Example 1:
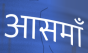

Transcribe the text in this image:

आसमाँ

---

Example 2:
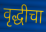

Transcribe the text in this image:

वृद्धीचा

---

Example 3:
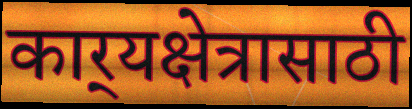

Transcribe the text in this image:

कार्यक्षेत्रासाठी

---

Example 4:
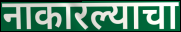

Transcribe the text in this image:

नाकारल्याचा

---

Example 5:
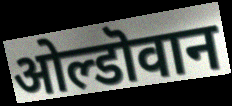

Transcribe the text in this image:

ओल्डॊवान